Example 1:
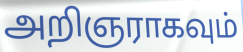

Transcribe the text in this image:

அறிஞராகவும்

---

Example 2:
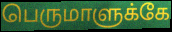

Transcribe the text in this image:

பெருமாளுக்கே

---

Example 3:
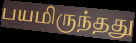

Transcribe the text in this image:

பயமிருந்தது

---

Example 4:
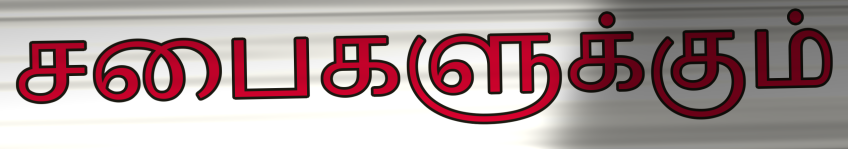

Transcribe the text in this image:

சபைகளுக்கும்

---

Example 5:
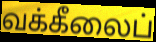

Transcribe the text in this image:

வக்கீலைப்